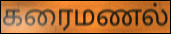
கரைமணல்